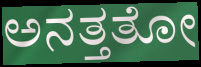
ಅನತ್ತತೋ